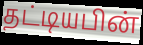
தட்டியபின்